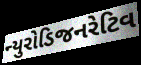
ન્યુરોડિજનરેટિવ